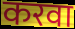
करवा